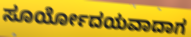
ಸೂರ್ಯೋದಯವಾದಾಗ